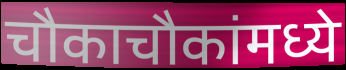
चौकाचौकांमध्ये